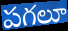
పగలూ